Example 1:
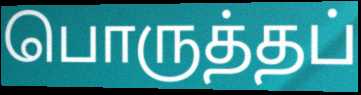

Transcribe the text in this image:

பொருத்தப்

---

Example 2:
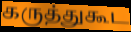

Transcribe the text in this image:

கருத்துகூட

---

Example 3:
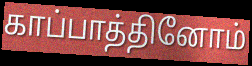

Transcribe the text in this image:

காப்பாத்தினோம்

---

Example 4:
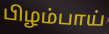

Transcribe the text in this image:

பிழம்பாய்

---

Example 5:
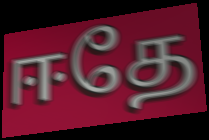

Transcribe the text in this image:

ஈதே